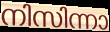
നിസിന്നാ